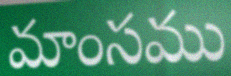
మాంసము